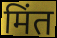
मिंत